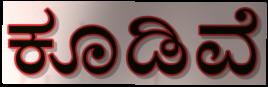
ಕೂಡಿವೆ